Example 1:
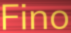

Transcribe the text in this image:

Fino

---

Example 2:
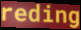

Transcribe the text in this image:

reding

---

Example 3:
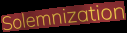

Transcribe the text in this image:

Solemnization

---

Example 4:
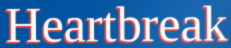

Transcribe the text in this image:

Heartbreak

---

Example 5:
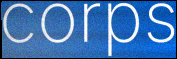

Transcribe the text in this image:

corps